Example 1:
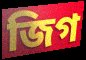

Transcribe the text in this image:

জিগ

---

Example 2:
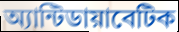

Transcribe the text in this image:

অ্যান্টিডায়াবেটিক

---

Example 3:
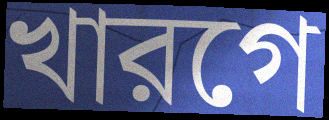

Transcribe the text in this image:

খারগে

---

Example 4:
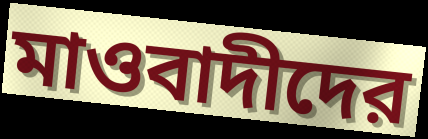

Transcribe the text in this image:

মাওবাদীদের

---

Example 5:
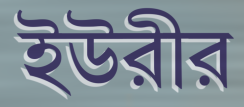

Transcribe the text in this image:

ইউরীর